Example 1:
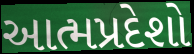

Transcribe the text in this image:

આત્મપ્રદેશો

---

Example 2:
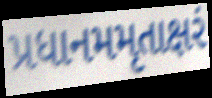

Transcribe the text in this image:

પ્રધાનમમૃતાક્ષરં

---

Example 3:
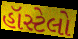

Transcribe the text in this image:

હૉસ્ટેલો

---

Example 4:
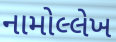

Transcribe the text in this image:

નામોલ્લેખ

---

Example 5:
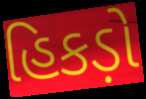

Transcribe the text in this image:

હિકડ઼ો